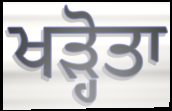
ਖੜ੍ਹੋਤਾ